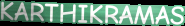
KARTHIKRAMAS